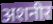
अशनीर